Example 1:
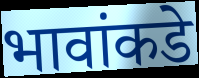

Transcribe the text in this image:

भावांकडे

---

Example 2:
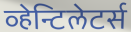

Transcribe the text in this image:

व्हेन्टिलेटर्स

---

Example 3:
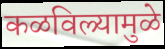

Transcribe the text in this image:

कळविल्यामुळे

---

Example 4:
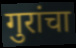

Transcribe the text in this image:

गुरांचा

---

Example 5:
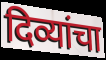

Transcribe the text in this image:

दिव्यांचा